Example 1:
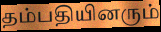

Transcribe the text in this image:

தம்பதியினரும்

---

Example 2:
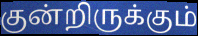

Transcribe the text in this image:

குன்றிருக்கும்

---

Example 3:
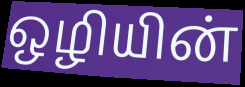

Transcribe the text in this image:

ஒழியின்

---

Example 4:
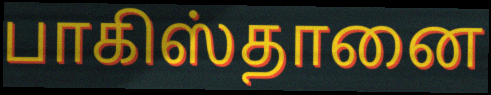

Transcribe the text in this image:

பாகிஸ்தானை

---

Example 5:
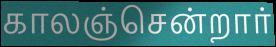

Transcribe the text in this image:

காலஞ்சென்றார்